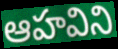
ఆహవిని